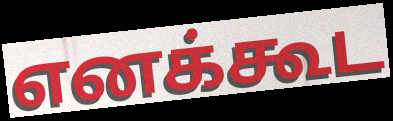
எனக்கூட